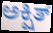
ಅಕ್ಷಿತ್